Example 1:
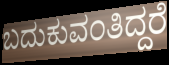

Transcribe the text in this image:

ಬದುಕುವಂತಿದ್ದರೆ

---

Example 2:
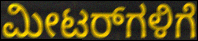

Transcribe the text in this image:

ಮೀಟರ್‌ಗಳಿಗೆ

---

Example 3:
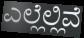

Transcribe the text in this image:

ಎಲ್ಲೆಲ್ಲಿವೆ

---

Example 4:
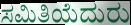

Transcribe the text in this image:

ಸಮಿತಿಯೆದುರು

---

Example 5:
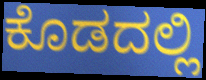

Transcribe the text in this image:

ಕೊಡದಲ್ಲಿ